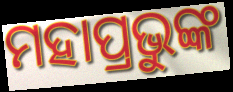
ମହାପ୍ରଭୁଙ୍କ